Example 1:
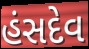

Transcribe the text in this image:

હંસદેવ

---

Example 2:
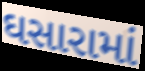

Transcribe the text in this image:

ઘસારામાં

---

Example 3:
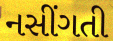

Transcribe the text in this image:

નસીંગતી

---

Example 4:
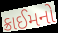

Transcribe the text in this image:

ક્રાઈમનો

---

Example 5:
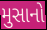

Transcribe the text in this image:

મુસાનો